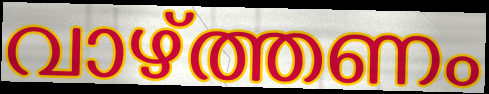
വാഴ്ത്തണം